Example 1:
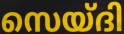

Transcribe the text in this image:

സെയ്ദി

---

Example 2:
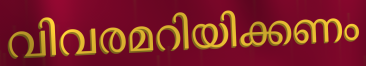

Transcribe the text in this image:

വിവരമറിയിക്കണം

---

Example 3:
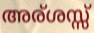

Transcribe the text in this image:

അര്ശസ്സ്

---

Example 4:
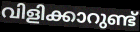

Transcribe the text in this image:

വിളിക്കാറുണ്ട്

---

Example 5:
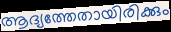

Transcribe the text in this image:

ആദ്യത്തേതായിരിക്കും